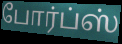
போர்ப்ஸ்